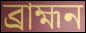
ব্ৰাহ্মন